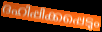
ദഹിപ്പിക്കപ്പെടും